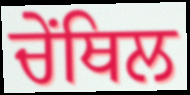
ਚੇਂਥਿਲ